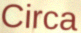
Circa